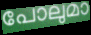
പോലുമാ